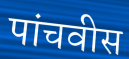
पांचवीस